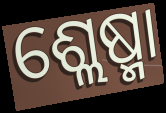
ଶ୍ଲେଷ୍ମା